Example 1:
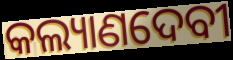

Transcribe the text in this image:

କଲ୍ୟାଣଦେବୀ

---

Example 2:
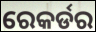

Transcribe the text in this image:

ରେକର୍ଡର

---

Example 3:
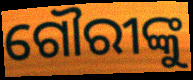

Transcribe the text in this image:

ଗୌରୀଙ୍କୁ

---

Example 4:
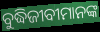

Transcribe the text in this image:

ବୁଦ୍ଧିଜୀବୀମାନଙ୍କ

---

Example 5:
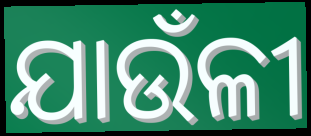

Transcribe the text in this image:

ଯାଉଁଳୀ